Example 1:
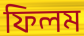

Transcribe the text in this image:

ফিলম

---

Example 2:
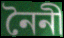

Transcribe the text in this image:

নৈনী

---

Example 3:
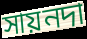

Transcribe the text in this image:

সায়নদা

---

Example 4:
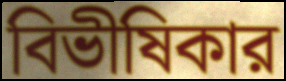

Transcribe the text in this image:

বিভীষিকার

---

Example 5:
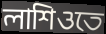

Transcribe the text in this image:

লাশিওতে